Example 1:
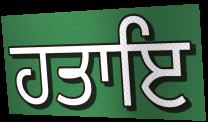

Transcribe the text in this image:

ਹਤਾਇ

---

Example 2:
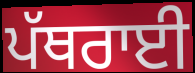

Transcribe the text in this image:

ਪੱਥਰਾਈ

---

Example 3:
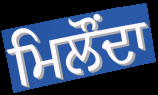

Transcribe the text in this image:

ਮਿਲੌਂਦਾ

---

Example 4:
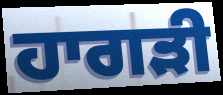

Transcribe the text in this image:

ਹਾਗੜੀ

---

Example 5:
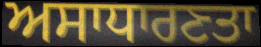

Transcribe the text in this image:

ਅਸਾਧਾਰਣਤਾ